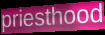
priesthood